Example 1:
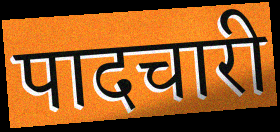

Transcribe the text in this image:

पादचारी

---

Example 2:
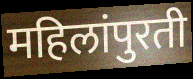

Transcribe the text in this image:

महिलांपुरती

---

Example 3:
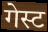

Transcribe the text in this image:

गेस्ट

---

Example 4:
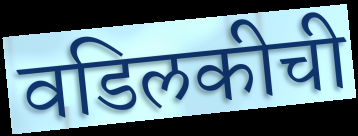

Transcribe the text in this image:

वडिलकीची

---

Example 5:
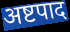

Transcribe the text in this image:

अष्टपाद